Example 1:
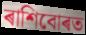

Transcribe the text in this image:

ৰাশিবোৰত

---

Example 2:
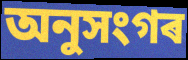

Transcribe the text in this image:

অনুসংগৰ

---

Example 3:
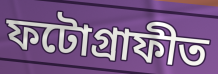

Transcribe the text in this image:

ফটোগ্ৰাফীত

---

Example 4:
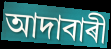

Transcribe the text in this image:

আদাবাৰী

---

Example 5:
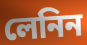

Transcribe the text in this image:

লেনিন